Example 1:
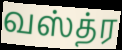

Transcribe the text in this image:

வஸ்த்ர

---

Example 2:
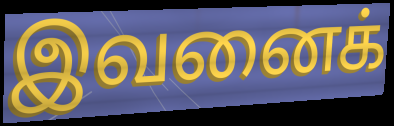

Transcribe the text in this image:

இவனைக்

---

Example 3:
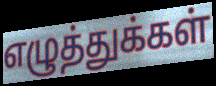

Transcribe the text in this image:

எழுத்துக்கள்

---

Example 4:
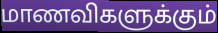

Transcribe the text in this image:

மாணவிகளுக்கும்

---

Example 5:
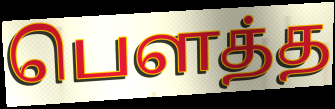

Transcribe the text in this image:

பௌத்த